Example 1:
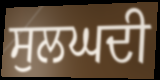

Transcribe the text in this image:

ਸੁਲਘਦੀ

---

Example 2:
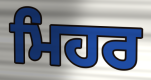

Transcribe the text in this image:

ਮਿਹਰ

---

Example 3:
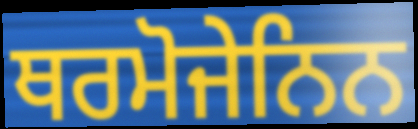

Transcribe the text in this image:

ਥਰਮੋਜੇਨਿਨ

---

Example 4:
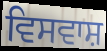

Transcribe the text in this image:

ਵਿਸਵਾਸ਼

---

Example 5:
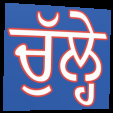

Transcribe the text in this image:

ਚੁੱਲ੍ਹੇ